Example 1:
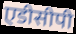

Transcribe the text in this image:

एडीसीपी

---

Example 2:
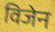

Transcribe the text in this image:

विजेन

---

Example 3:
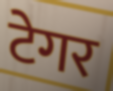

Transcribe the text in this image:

टेगर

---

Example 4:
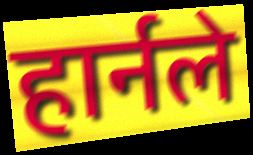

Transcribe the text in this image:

हार्नले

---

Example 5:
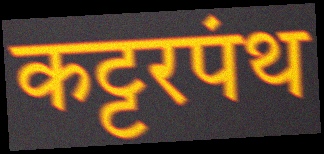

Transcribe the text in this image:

कट्टरपंथ